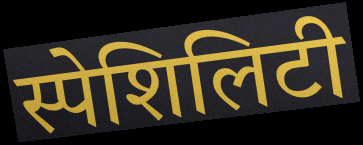
स्पेशिलिटी